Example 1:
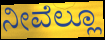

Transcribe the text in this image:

ನೀವೆಲ್ಲೂ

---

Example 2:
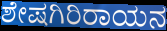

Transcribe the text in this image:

ಶೇಷಗಿರಿರಾಯನ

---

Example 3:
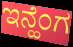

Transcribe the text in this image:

ಇನ್ಹೆಂಗ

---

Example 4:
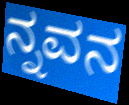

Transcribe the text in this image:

ನ್ನವನ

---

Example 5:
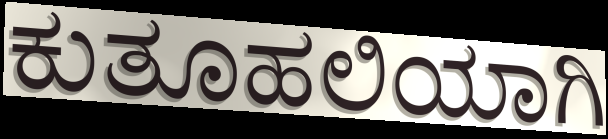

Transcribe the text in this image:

ಕುತೂಹಲಿಯಾಗಿ